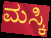
ಮಸ್ಕಿ